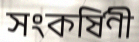
সংকর্ষিণী